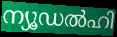
ന്യൂഡൽഹി